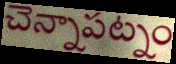
చెన్నాపట్నం